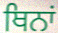
ਥਿਨਾਂ